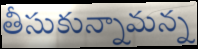
తీసుకున్నామన్న